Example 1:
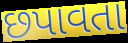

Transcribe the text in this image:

છપાવતા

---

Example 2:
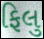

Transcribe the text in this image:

ફિલુ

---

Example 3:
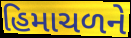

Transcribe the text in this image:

હિમાચળને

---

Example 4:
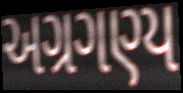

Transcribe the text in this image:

અગ્રગણ્ય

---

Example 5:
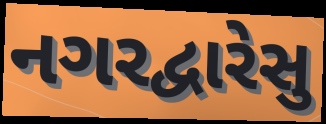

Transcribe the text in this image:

નગરદ્વારેસુ